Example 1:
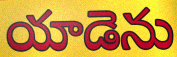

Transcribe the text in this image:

యాడెను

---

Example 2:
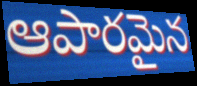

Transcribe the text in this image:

ఆపారమైన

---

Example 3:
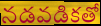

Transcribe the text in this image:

నడవడికతో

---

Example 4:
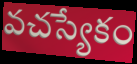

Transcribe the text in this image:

వచస్యేకం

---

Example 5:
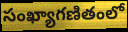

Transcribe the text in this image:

సంఖ్యాగణితంలో